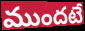
ముందటే